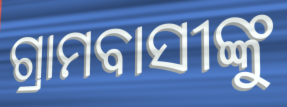
ଗ୍ରାମବାସୀଙ୍କୁ